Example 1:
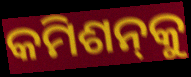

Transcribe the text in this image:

କମିଶନ୍‌କୁ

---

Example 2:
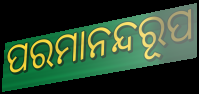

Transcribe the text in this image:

ପରମାନନ୍ଦରୂପ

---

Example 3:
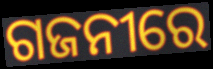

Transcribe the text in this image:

ଗଜନୀରେ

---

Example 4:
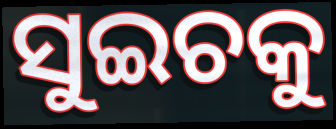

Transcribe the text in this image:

ସୁଇଚକୁ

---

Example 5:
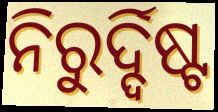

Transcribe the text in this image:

ନିରୁର୍ଦ୍ଦିଷ୍ଟ